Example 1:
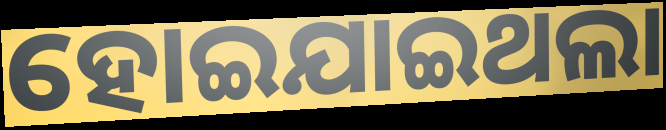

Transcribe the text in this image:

ହୋଇଯାଇଥଲା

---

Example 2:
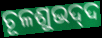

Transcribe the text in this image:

ଚୂଳଶୁଭଦ୍‍ଦ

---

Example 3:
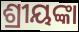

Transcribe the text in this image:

ଶ୍ରୀୟଙ୍କା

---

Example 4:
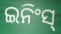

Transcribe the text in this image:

ଇନିଂସ୍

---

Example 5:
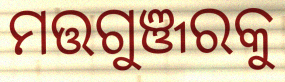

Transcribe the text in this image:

ମତ୍ତଗୁଞ୍ଜରକୁ